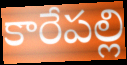
కారేపల్లి